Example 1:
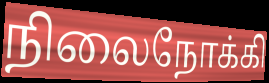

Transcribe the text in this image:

நிலைநோக்கி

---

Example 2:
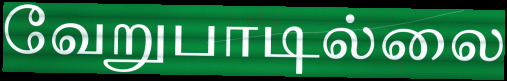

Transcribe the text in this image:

வேறுபாடில்லை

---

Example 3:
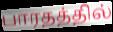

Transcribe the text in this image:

பாரதத்தில்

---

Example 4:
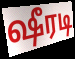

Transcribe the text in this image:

ஷீரடி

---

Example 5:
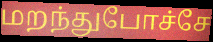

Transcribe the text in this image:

மறந்துபோச்சே